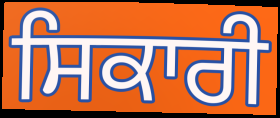
ਸਿਕਾਰੀ